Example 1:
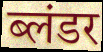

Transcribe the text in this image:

ब्लंडर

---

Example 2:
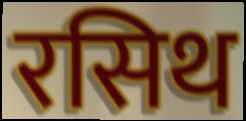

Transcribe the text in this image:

रसिथ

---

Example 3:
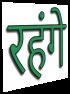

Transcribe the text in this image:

रहंगे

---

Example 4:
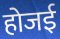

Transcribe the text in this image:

होजई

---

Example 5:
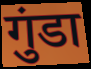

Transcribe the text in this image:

गुंडा